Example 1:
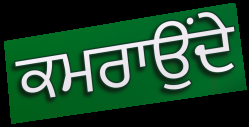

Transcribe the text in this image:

ਕਮਰਾਉਂਦੇ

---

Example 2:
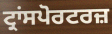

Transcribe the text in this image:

ਟ੍ਰਾਂਸਪੋਰਟਰਜ਼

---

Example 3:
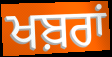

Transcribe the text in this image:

ਖਬ਼ਰਾਂ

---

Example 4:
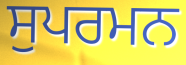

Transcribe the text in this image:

ਸੁਪਰਮਨ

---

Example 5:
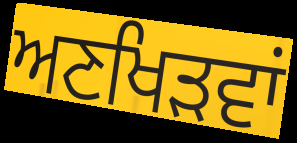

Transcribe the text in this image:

ਅਣਖਿੜਵਾਂ